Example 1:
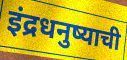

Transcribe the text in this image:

इंद्रधनुष्याची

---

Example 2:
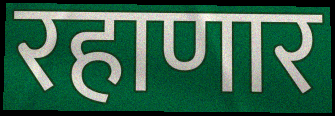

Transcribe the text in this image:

रहाणार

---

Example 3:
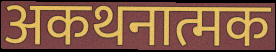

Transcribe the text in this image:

अकथनात्मक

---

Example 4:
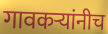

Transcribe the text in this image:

गावकऱ्यांनीच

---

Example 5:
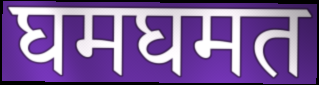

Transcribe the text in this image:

घमघमत